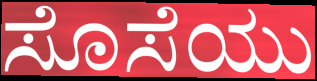
ಸೊಸೆಯು